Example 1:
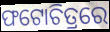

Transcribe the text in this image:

ଫଟୋଚିତ୍ରରେ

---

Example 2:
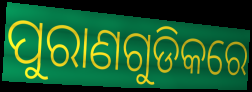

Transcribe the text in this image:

ପୁରାଣଗୁଡିକରେ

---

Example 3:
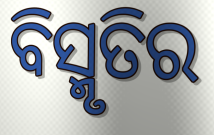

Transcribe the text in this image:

ବିସ୍ମୃତିର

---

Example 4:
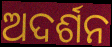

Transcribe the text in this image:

ଅଦର୍ଶନ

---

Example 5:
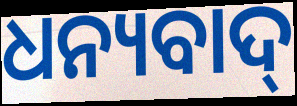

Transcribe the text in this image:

ଧନ୍ୟବାଦ୍